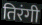
तिरंगी